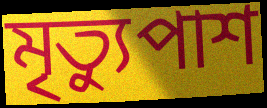
মৃত্যুপাশ